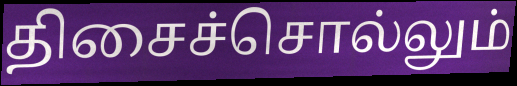
திசைச்சொல்லும்